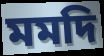
মমদি